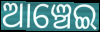
ଆଞ୍ଚେଇ